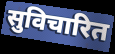
सुविचारित